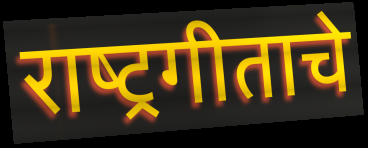
राष्ट्रगीताचे